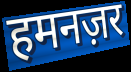
हमनज़र